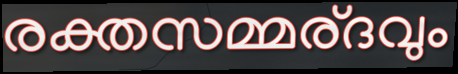
രക്തസമ്മര്ദവും